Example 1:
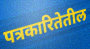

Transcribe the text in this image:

पत्रकारितेतील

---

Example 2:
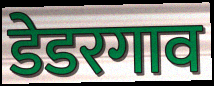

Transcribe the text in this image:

डेडरगाव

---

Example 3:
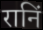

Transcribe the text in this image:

रानिं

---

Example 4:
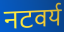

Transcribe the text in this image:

नटवर्य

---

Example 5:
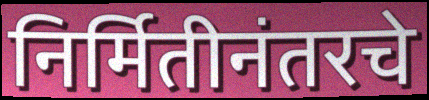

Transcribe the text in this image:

निर्मितीनंतरचे